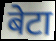
बेटा